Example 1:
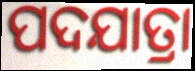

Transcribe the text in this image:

ପଦଯାତ୍ରା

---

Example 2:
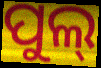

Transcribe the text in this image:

ପୁଲ୍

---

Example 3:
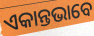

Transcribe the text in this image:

ଏକାନ୍ତଭାବେ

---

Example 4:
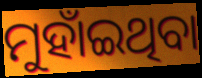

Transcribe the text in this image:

ମୁହାଁଇଥିବା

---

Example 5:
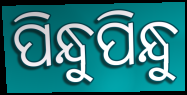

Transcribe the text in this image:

ପିନ୍ଧୁପିନ୍ଧୁ